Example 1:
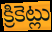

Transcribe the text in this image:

క్రికెట్లు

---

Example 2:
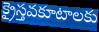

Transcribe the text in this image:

క్రైస్తవకూటాలకు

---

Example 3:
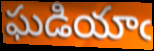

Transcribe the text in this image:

ఘడియాఁ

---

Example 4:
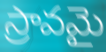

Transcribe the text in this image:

స్రావమై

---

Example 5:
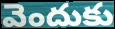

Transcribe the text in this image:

వెందుకు